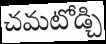
చమటోడ్చి